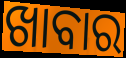
ଖାବାର